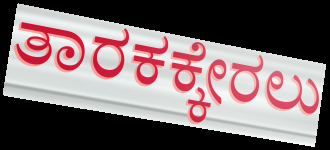
ತಾರಕಕ್ಕೇರಲು